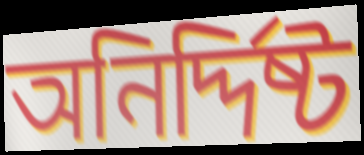
অনির্দ্দিষ্ট